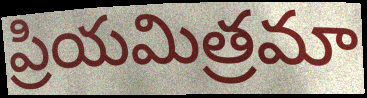
ప్రియమిత్రమా